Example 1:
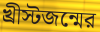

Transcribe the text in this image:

খ্রীস্টজন্মের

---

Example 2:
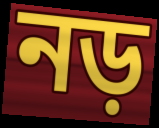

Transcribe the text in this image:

নড়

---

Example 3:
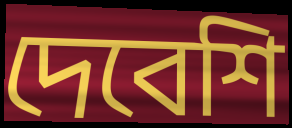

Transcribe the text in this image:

দেবেশি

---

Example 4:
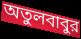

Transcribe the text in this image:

অতুলবাবুর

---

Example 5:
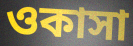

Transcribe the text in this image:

ওকাসা